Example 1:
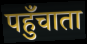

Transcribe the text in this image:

पहुँचाता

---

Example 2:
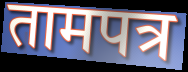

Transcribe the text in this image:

तामपत्र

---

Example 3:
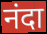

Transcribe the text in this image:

नंदा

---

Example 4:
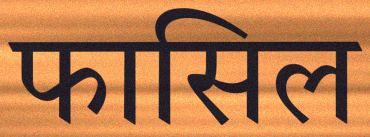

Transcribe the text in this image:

फासिल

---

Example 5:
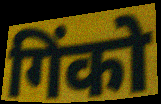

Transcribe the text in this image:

गिंको